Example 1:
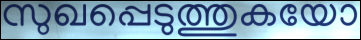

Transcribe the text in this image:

സുഖപ്പെടുത്തുകയോ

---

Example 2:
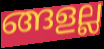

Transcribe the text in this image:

ങ്ങളല്ല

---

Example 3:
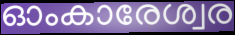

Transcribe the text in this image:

ഓംകാരേശ്വര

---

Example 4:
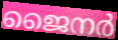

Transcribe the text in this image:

ജൈനർ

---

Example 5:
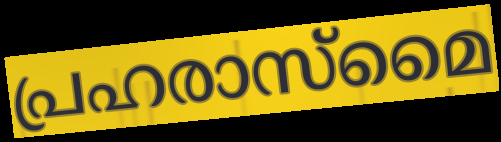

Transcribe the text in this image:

പ്രഹരാസ്മൈ